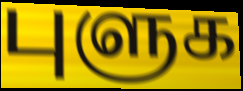
புளுக